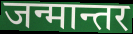
जन्मान्तर